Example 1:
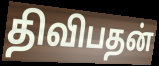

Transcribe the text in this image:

திவிபதன்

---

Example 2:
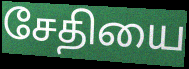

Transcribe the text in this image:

சேதியை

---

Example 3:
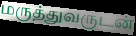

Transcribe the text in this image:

மருத்துவருடன்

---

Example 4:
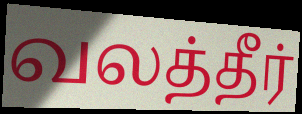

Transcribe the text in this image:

வலத்தீர்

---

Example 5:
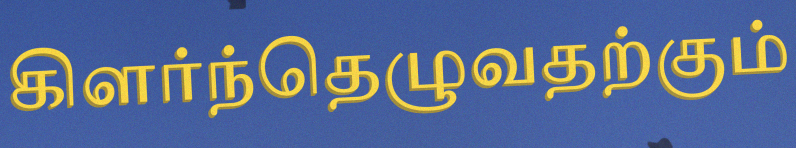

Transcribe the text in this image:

கிளர்ந்தெழுவதற்கும்